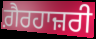
ਗ਼ੈਰਹਾਜ਼ਰੀ